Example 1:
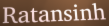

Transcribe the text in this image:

Ratansinh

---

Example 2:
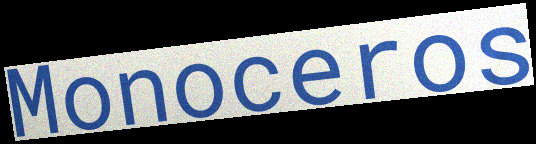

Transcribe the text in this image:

Monoceros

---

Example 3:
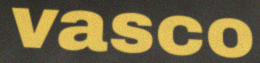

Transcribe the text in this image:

vasco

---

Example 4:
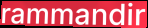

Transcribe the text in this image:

rammandir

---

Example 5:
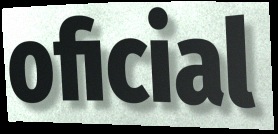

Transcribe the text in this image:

oficial